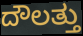
ದೌಲತ್ತು